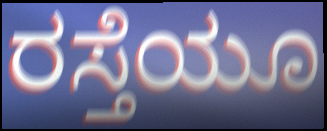
ರಸ್ತೆಯೂ